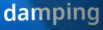
damping